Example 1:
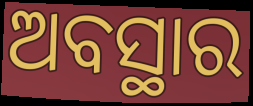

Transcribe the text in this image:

ଅବସ୍ଥାର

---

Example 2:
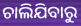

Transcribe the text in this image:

ଚାଲିଯିବାରୁ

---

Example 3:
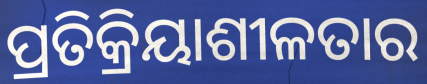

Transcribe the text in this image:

ପ୍ରତିକ୍ରିୟାଶୀଳତାର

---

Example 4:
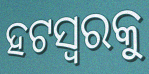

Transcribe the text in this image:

ହଟସ୍ଵରକୁ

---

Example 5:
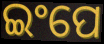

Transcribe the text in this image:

ଇଂପେ